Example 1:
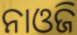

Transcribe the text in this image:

ନାଓଜି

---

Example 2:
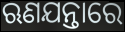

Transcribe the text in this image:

ଋଣଯନ୍ତାରେ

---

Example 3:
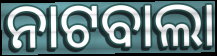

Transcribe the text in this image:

ନାଟବାଲା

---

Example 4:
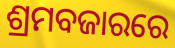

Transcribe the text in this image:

ଶ୍ରମବଜାରରେ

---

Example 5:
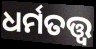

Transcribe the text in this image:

ଧର୍ମତତ୍ତ୍ଵ